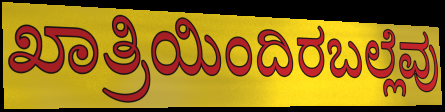
ಖಾತ್ರಿಯಿಂದಿರಬಲ್ಲೆವು